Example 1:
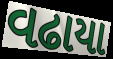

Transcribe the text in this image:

વઢાયા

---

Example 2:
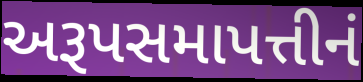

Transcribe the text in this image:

અરૂપસમાપત્તીનં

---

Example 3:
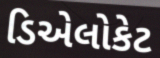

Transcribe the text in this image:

ડિએલોકેટ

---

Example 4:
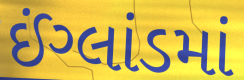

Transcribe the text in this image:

ઈંગ્લાંડમાં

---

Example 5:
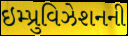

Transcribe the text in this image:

ઇમ્પ્રુવિઝેશનની